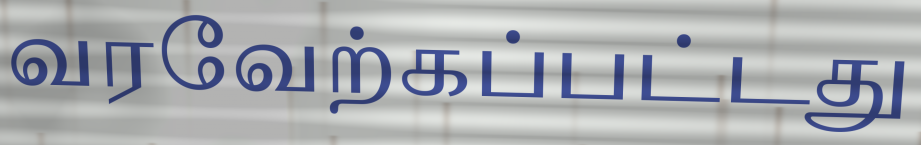
வரவேற்கப்பட்டது